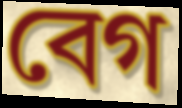
বেগ